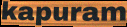
kapuram